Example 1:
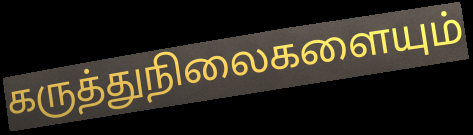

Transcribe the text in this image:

கருத்துநிலைகளையும்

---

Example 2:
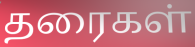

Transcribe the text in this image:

தரைகள்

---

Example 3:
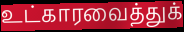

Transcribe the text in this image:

உட்காரவைத்துக்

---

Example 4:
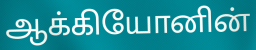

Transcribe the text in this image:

ஆக்கியோனின்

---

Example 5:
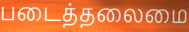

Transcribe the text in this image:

படைத்தலைமை